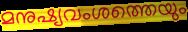
മനുഷ്യവംശത്തെയും